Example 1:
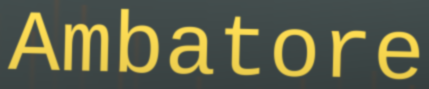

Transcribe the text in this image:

Ambatore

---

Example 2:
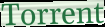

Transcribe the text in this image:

Torrent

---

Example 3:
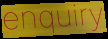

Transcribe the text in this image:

enquiry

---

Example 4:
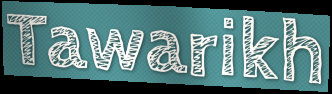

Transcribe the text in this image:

Tawarikh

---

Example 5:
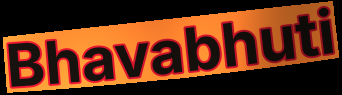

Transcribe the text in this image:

Bhavabhuti